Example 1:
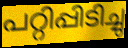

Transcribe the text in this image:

പറ്റിപ്പിടിച്ചു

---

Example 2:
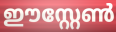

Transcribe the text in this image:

ഈസ്റ്റേൺ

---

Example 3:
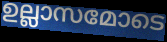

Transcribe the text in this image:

ഉല്ലാസമോടെ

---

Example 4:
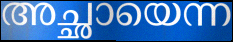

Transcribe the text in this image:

അച്ഛായെന്ന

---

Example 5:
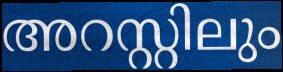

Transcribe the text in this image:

അറസ്റ്റിലും